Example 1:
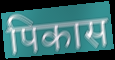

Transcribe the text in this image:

पिकास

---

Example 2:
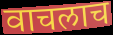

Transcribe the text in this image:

वाचलाच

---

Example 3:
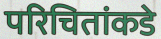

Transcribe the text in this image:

परिचितांकडे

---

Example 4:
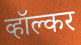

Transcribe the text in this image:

व्हॉल्कर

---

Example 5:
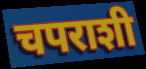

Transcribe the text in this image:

चपराशी